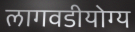
लागवडीयोग्य